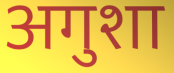
अगुशा